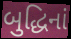
બુદ્ધિનાં